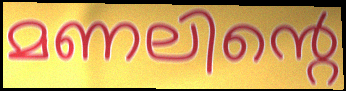
മണലിന്റെ